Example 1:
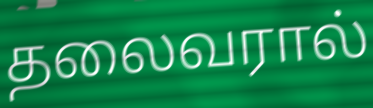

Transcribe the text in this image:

தலைவரால்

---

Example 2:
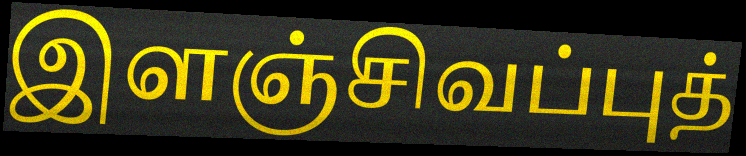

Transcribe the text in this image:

இளஞ்சிவப்புத்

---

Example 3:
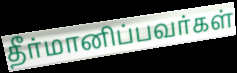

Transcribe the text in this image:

தீர்மானிப்பவர்கள்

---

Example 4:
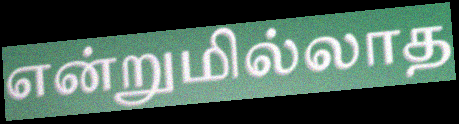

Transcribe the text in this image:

என்றுமில்லாத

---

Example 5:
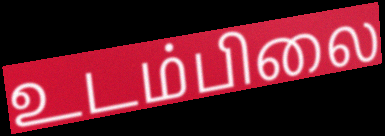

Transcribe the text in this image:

உடம்பிலை